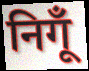
निगूँ